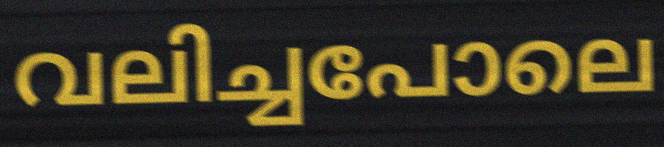
വലിച്ചപോലെ